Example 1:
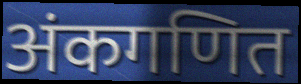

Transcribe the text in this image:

अंकगणित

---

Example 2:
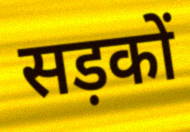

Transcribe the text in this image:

सड़कों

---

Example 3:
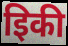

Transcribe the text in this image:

इिकी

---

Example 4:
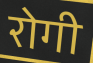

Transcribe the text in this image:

रोगी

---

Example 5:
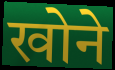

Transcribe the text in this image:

खोने